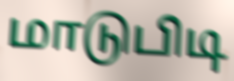
மாடுபிடி